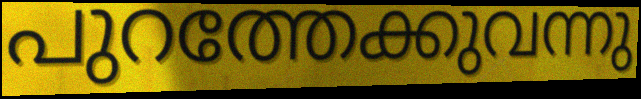
പുറത്തേക്കുവന്നു